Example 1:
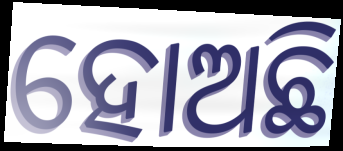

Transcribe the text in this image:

ହୋଅଛି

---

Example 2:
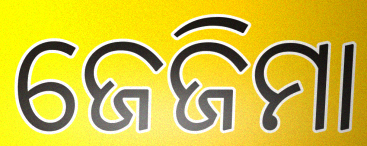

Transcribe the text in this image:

ଜେଜିମା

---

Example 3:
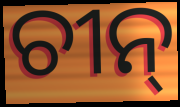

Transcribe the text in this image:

ଚୀନ୍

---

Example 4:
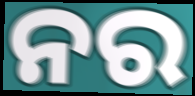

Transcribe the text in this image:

ନର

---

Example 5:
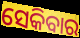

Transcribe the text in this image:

ସେକିବାର